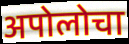
अपोलोचा